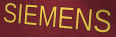
SIEMENS